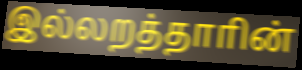
இல்லறத்தாரின்